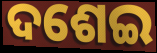
ଦଶେଇ